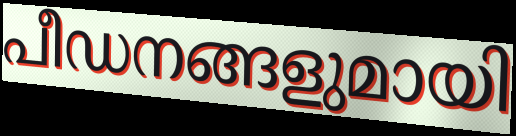
പീഡനങ്ങളുമായി